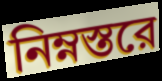
নিম্নস্তরে